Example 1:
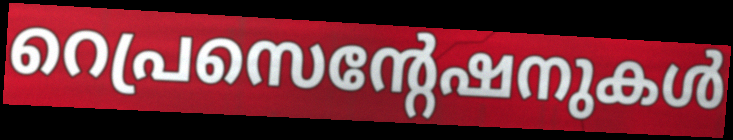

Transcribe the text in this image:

റെപ്രസെന്റേഷനുകൾ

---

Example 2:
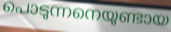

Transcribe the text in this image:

പൊടുന്നനെയുണ്ടായ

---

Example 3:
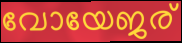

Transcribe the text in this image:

വോയേജര്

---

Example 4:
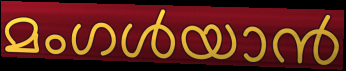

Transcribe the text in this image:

മംഗൾയാൻ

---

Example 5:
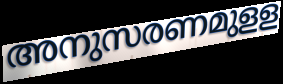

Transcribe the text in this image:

അനുസരണമുളള